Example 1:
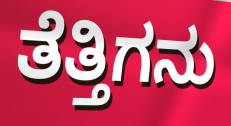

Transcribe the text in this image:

ತೆತ್ತಿಗನು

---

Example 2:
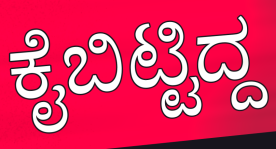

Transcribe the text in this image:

ಕೈಬಿಟ್ಟಿದ್ದ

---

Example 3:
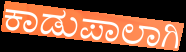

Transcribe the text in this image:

ಕಾಡುಪಾಲಾಗಿ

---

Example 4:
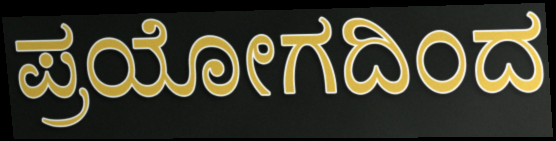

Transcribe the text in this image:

ಪ್ರಯೋಗದಿಂದ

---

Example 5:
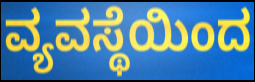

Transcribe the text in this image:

ವ್ಯವಸ್ಥೆಯಿಂದ